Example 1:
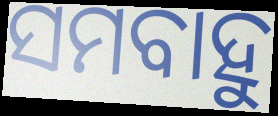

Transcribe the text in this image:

ସମବାହୁ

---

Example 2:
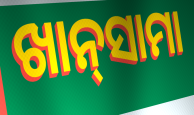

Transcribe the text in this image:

ଖାନ୍‌ସାମା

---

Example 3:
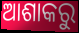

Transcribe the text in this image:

ଆଶାକରୁ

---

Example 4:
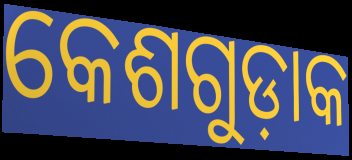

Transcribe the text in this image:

କେଶଗୁଡ଼ାକ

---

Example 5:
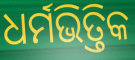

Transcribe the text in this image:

ଧର୍ମଭିତ୍ତିକ